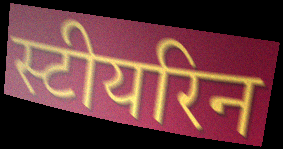
स्टीयरिन